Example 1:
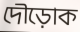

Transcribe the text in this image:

দৌড়োক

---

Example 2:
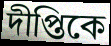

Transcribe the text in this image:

দীপ্তিকে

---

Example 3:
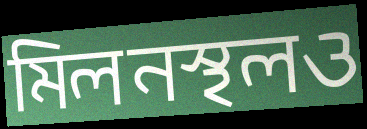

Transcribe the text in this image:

মিলনস্থলও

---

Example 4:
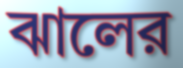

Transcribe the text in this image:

ঝালের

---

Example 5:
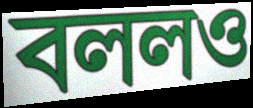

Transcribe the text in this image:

বললও